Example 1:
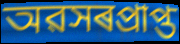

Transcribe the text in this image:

অৱসৰপ্ৰাপ্ত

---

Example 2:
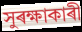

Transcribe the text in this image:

সুৰক্ষাকাৰী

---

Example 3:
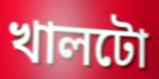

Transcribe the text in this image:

খালটো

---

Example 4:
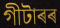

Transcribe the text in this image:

গীটাৰৰ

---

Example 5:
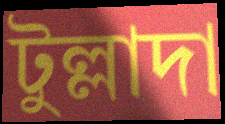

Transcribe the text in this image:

টুল্লাদা